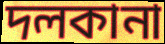
দলকানা